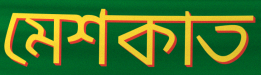
মেশকাত